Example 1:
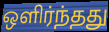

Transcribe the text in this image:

ஒளிர்ந்தது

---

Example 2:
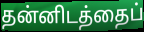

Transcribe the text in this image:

தன்னிடத்தைப்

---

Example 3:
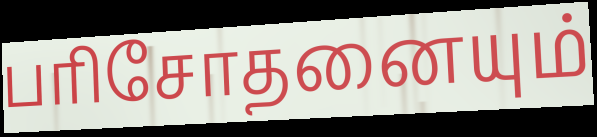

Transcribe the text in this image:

பரிசோதனையும்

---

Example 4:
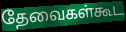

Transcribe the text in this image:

தேவைகள்கூட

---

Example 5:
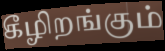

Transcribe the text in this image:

கீழிறங்கும்